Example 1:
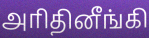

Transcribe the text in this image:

அரிதினீங்கி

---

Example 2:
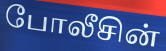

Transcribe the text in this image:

போலீசின்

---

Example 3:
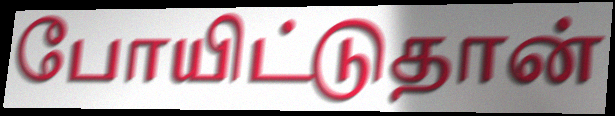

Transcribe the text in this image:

போயிட்டுதான்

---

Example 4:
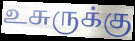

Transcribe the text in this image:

உசுருக்கு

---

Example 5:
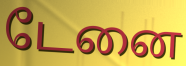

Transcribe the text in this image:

டேனை